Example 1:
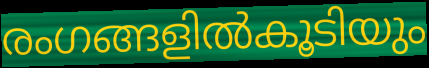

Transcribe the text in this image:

രംഗങ്ങളിൽകൂടിയും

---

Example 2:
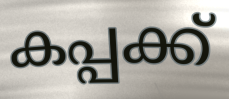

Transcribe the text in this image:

കപ്പക്ക്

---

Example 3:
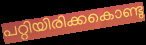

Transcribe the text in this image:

പറ്റിയിരിക്കകൊണ്ടു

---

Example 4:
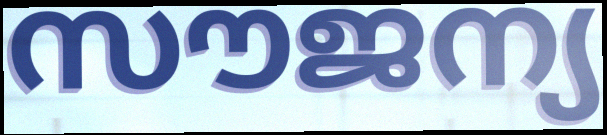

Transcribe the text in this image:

സൗജന്യ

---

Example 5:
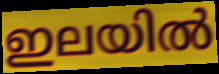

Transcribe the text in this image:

ഇലയിൽ